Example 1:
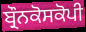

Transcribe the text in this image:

ਬ੍ਰੌਨਕੋਸਕੋਪੀ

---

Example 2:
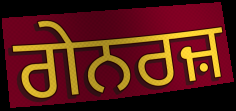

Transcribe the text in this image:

ਗੇਨਰਜ਼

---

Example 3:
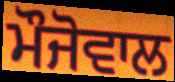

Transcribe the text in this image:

ਮੌਜੋਵਾਲ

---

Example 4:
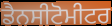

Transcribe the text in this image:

ਡੈਨਸੀਟੋਮੀਟਰ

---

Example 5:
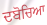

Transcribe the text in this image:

ਦਬੋਚਿਆ